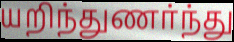
யறிந்துணர்ந்து